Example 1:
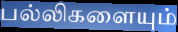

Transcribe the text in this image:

பல்லிகளையும்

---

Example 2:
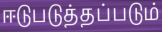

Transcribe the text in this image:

ஈடுபடுத்தப்படும்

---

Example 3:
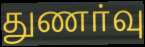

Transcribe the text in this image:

துணர்வு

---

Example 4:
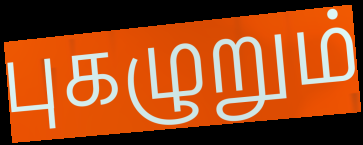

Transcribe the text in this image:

புகழுறும்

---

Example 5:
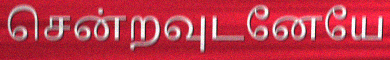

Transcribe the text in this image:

சென்றவுடனேயே